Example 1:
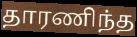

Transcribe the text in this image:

தாரணிந்த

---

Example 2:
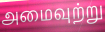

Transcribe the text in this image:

அமைவுற்று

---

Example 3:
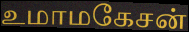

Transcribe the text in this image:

உமாமகேசன்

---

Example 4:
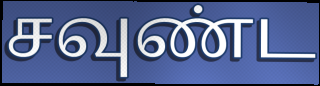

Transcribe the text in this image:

சவுண்ட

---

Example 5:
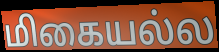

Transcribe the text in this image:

மிகையல்ல